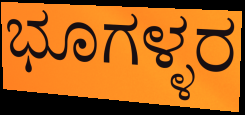
ಭೂಗಳ್ಳರ